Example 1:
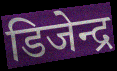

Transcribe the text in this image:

डिजेन्द्र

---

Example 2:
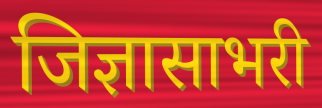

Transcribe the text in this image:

जिज्ञासाभरी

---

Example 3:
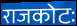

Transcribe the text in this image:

राजकोटः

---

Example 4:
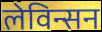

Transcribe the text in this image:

लेविन्सन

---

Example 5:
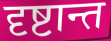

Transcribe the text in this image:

दृष्टान्त